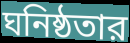
ঘনিষ্ঠতার